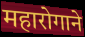
महारोगाने